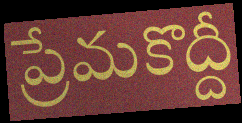
ప్రేమకొద్దీ